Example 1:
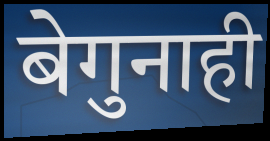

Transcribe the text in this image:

बेगुनाही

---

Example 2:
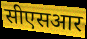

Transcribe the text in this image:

सीएसआर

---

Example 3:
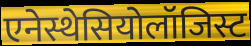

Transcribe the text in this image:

एनेस्थेसियोलॉजिस्ट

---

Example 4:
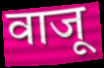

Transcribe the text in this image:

वाजू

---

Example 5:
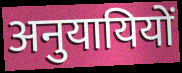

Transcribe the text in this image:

अनुयायियों